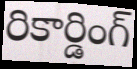
రికార్డింగ్